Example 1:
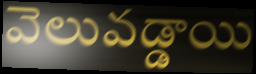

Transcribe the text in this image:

వెలువడ్డాయి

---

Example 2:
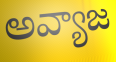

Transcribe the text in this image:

అవ్యాజ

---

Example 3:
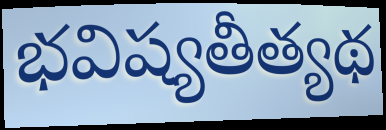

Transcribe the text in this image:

భవిష్యతీత్యథ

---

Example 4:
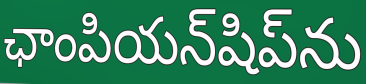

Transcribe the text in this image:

ఛాంపియన్‌షిప్‌ను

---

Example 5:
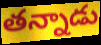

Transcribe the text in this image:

తన్నాడు